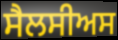
ਸੈਲਸੀਅਸ